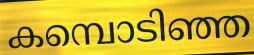
കമ്പൊടിഞ്ഞ